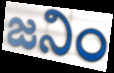
జనిం